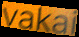
vakai